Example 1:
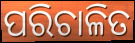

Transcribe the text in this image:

ପରିଚାଳିତ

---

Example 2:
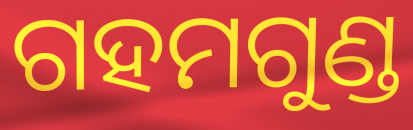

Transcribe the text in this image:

ଗହମଗୁଣ୍ଡ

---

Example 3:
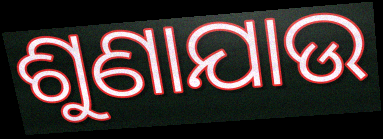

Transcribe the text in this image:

ଶୁଣାଯାଉ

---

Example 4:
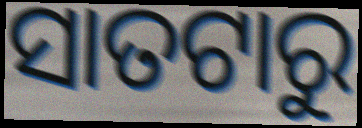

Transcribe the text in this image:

ସାତଟାରୁ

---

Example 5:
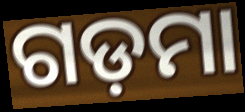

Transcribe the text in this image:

ଗଡ଼ମା